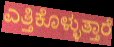
ಎತ್ತಿಕೊಳ್ಳುತ್ತಾರೆ